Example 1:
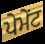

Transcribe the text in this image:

ਪੇਮੇਂਟ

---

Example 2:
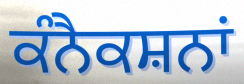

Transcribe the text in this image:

ਕੰਨੈਕਸ਼ਨਾਂ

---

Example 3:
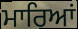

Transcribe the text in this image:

ਮਾਰਿਆਂ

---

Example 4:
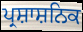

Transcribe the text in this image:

ਪ੍ਰਸ਼ਾਸ਼ਨਿਕ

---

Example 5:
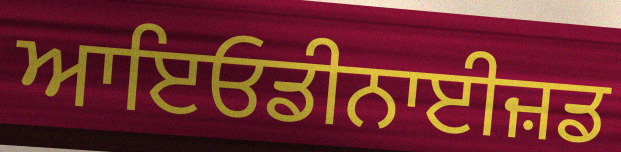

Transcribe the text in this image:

ਆਇਓਡੀਨਾਈਜ਼ਡ